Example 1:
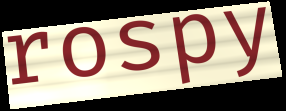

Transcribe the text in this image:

rospy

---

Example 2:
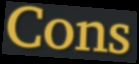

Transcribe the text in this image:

Cons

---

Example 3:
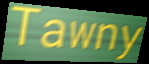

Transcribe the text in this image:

Tawny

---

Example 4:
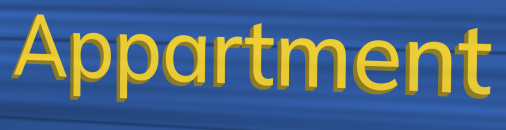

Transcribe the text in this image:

Appartment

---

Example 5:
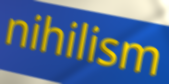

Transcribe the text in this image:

nihilism